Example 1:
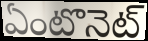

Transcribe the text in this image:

ఏంటొనెట్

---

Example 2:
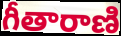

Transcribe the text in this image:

గీతారాణి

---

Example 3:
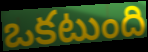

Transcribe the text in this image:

ఒకటుంది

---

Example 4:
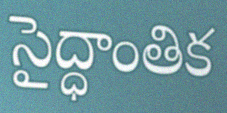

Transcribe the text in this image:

సైద్ధాంతిక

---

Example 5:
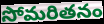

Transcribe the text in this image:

సోమరితనం